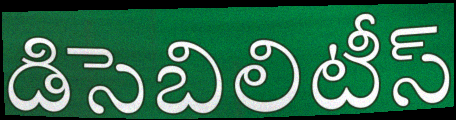
డిసెబిలిటీస్